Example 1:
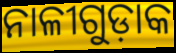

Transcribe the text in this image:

ନାଳୀଗୁଡ଼ାକ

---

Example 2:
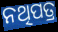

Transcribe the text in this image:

ନଥିପତ୍ର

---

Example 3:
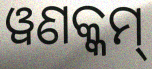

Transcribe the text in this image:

ୱଣକ୍କମ୍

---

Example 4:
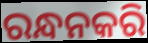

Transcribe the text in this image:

ରନ୍ଧନକରି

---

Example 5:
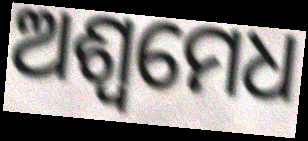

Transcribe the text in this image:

ଅଶ୍ୱମେଧ